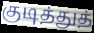
குடித்துத்